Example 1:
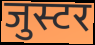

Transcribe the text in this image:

जुस्टर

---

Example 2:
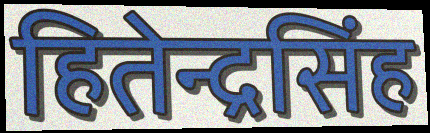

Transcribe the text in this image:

हितेन्द्रसिंह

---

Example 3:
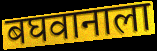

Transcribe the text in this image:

बघवानाला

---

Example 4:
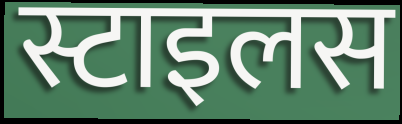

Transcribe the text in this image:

स्टाइलस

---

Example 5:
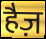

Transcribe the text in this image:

हैज़